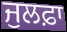
ਜੁਲਫ਼ਾ